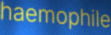
haemophile